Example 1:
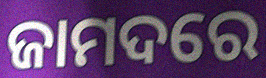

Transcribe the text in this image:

ଜାମଦରେ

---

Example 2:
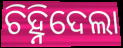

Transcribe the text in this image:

ଚିହ୍ନିଦେଲା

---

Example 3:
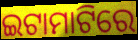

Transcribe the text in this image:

ଇଟାମାଟିରେ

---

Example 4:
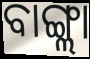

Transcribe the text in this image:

ବାଙ୍ଗ୍ଲା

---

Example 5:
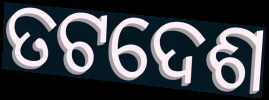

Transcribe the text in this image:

ତଟଦେଶ